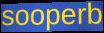
sooperb